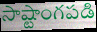
సాష్టాంగపడి